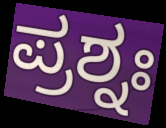
ಪ್ರಶ್ನಃ